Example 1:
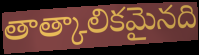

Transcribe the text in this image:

తాత్కాలికమైనది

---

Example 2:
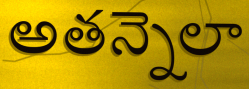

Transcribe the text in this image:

అతన్నెలా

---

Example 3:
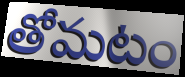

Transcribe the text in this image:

తోమటం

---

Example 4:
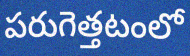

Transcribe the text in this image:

పరుగెత్తటంలో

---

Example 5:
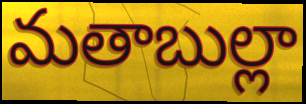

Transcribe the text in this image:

మతాబుల్లా